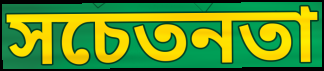
সচেতনতা